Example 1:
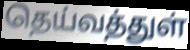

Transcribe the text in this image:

தெய்வத்துள்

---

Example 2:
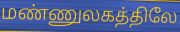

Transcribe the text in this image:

மண்ணுலகத்திலே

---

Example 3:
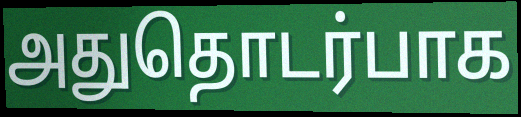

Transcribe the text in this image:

அதுதொடர்பாக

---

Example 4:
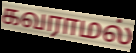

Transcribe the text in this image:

கவராமல்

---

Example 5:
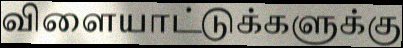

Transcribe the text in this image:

விளையாட்டுக்களுக்கு